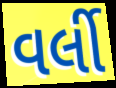
વર્લી